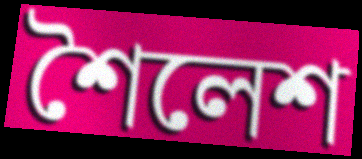
শৈলেশ